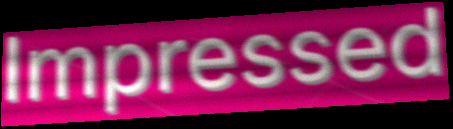
Impressed